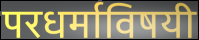
परधर्माविषयी